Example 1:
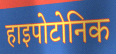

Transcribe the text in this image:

हाइपोटोनिक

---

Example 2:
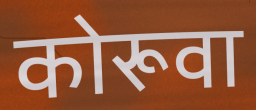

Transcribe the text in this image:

कोरूवा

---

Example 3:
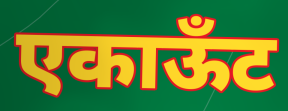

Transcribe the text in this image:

एकाऊँट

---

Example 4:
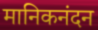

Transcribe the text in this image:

मानिकनंदन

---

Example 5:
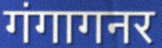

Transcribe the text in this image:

गंगागनर